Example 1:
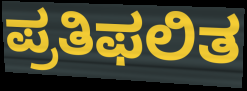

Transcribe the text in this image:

ಪ್ರತಿಫಲಿತ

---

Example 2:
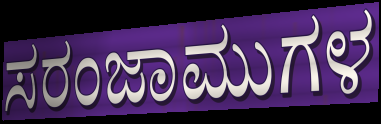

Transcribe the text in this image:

ಸರಂಜಾಮುಗಳ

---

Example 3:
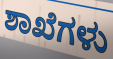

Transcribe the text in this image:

ಶಾಖೆಗಳು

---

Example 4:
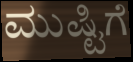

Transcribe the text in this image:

ಮುಷ್ಟಿಗೆ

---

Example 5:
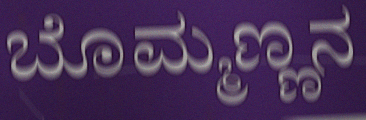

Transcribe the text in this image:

ಬೊಮ್ಮಣ್ಣನ